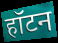
हॉटन